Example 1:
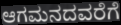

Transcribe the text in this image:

ಆಗಮನದವರೆಗೆ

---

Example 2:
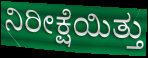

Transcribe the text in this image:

ನಿರೀಕ್ಷೆಯಿತ್ತು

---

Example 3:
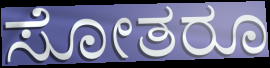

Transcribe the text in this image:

ಸೋತರೂ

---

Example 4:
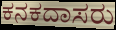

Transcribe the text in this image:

ಕನಕದಾಸರು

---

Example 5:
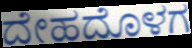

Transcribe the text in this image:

ದೇಹದೊಳಗ